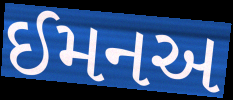
ઈમનઅ